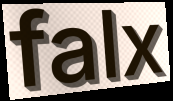
falx